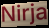
Nirja